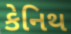
કેનિથ